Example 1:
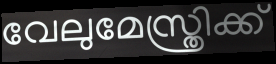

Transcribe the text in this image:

വേലുമേസ്ത്രിക്ക്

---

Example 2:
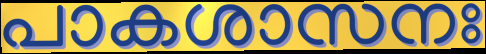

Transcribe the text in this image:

പാകശാസനഃ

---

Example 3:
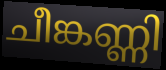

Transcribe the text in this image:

ചീങ്കണ്ണി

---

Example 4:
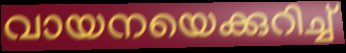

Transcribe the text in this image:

വായനയെക്കുറിച്ച്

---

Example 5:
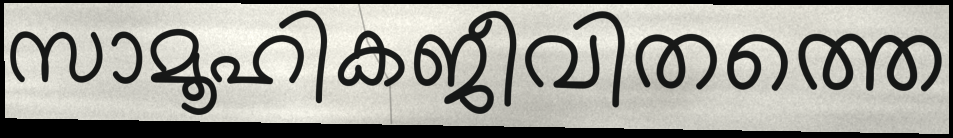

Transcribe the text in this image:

സാമൂഹികജീവിതത്തെ